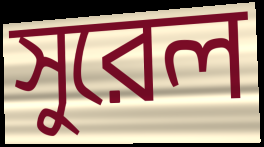
সুরেল